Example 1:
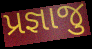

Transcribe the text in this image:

પ્રજ્ઞાજુ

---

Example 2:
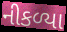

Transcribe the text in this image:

નીકળ્યા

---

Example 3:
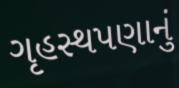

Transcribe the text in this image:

ગૃહસ્થપણાનું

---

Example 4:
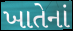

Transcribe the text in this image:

ખાતેનાં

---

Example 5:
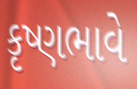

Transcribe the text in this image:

કૃષ્ણભાવે